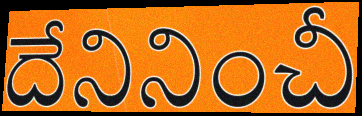
దేనినించీ